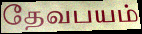
தேவபயம்